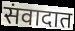
संवादात